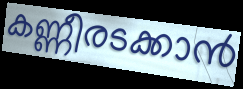
കണ്ണീരടക്കാൻ